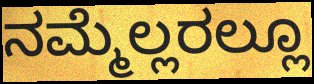
ನಮ್ಮೆಲ್ಲರಲ್ಲೂ